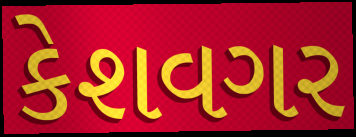
કેશવગર